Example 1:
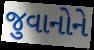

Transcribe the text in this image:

જુવાનોને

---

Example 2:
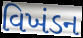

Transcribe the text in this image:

વિખંડન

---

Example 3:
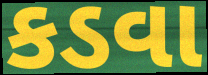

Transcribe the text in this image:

કડવા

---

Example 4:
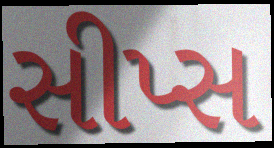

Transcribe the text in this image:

સીપ્સ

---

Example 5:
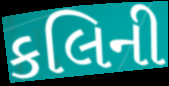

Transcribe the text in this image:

કલિની